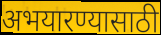
अभयारण्यासाठी